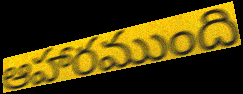
ఆహారముంది